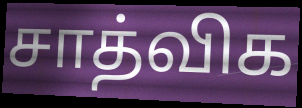
சாத்விக